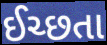
ઈચ્છતા